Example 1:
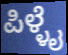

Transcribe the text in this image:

ಪಿಳ್ಳೈ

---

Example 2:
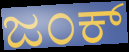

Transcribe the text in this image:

ಜಂಕ್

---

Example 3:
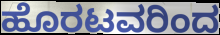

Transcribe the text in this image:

ಹೊರಟವರಿಂದ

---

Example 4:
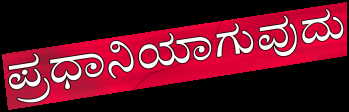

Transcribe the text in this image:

ಪ್ರಧಾನಿಯಾಗುವುದು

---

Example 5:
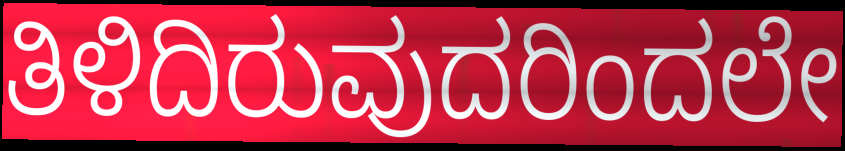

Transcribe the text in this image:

ತಿಳಿದಿರುವುದರಿಂದಲೇ